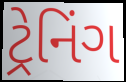
ટ્રેનિંગ